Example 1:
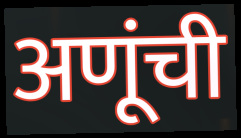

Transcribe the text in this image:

अणूंची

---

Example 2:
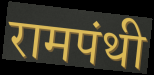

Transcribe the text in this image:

रामपंथी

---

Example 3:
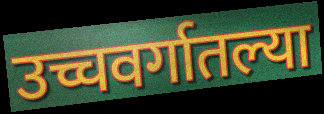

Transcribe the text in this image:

उच्चवर्गातल्या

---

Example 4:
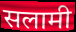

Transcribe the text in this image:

सलामी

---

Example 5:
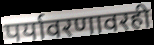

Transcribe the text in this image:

पर्यावरणावरही